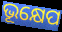
ଭୂକ୍ଷେପ